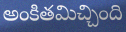
అంకితమిచ్చింది